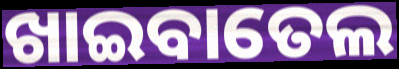
ଖାଇବାତେଲ